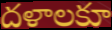
దళాలకూ